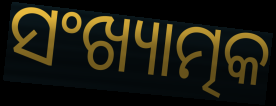
ସଂଖ୍ୟାତ୍ମକ